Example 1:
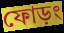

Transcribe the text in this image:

ফোড়ং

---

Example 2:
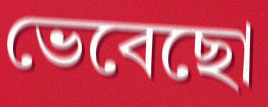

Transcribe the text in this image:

ভেবেছো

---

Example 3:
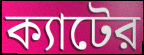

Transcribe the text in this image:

ক্যাটের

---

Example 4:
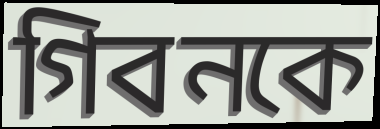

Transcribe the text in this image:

গিবনকে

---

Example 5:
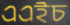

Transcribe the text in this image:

এএইচ